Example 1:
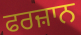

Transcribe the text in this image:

ਫਰਜ਼ਾਨ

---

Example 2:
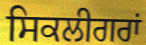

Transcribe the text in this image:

ਸਿਕਲੀਗਰਾਂ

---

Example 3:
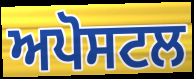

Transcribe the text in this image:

ਅਪੋਸਟਲ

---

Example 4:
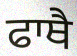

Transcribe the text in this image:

ਫਾਥੈ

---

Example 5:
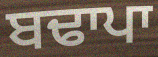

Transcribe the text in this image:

ਬਢਾਪਾ